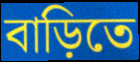
বাড়িতে